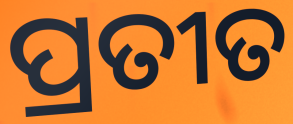
ପ୍ରତୀତ